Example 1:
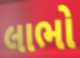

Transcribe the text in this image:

લાભો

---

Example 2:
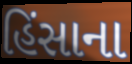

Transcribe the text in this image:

હિંસાના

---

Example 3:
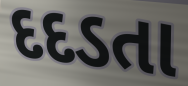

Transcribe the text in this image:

દદડતા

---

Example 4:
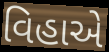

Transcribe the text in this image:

વિહાએ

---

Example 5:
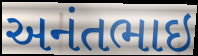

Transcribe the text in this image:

અનંતભાઇ